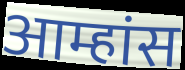
आम्हांस